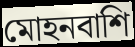
মোহনবাশি